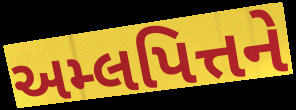
અમ્લપિત્તને